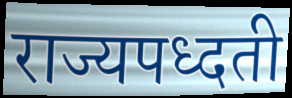
राज्यपध्दती